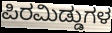
ಪಿರಮಿಡ್ಡುಗಳ